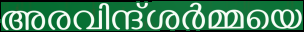
അരവിന്ദ്ശർമ്മയെ